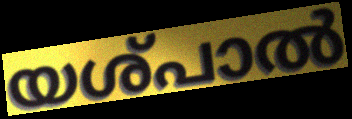
യശ്പാൽ